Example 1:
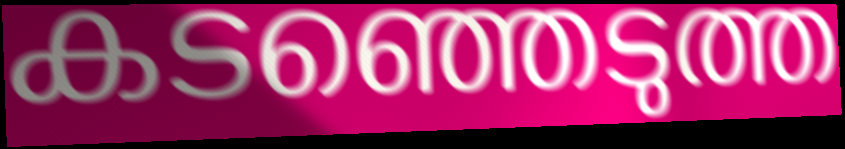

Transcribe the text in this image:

കടഞ്ഞെടുത്ത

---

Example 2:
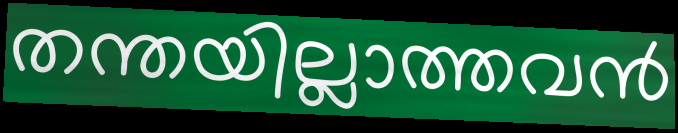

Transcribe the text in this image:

തന്തയില്ലാത്തവൻ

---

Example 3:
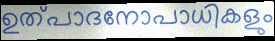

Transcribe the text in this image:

ഉത്പാദനോപാധികളും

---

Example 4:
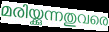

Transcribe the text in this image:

മരിയ്ക്കുന്നതുവരെ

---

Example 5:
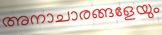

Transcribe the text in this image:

അനാചാരങ്ങളേയും